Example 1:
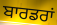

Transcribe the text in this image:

ਬਾਰਡਰਾਂ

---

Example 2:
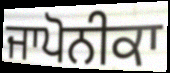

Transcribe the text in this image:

ਜਾਪੋਨੀਕਾ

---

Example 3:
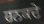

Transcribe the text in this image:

ਹਨਕਦੇ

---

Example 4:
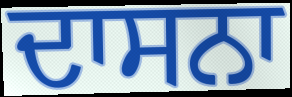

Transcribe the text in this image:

ਦਾਸਨਾ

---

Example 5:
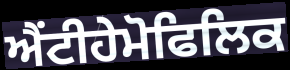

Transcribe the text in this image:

ਐਂਟੀਹੇਮੋਫਿਲਿਕ